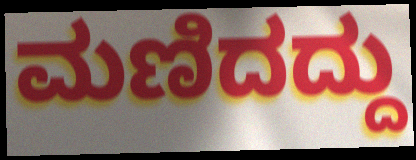
ಮಣಿದದ್ದು